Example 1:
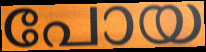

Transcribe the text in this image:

പോയ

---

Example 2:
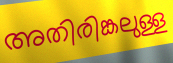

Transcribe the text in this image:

അതിരിങ്കലുള്ള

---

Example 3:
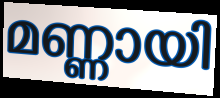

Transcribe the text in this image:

മണ്ണായി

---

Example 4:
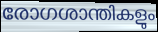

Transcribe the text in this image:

രോഗശാന്തികളും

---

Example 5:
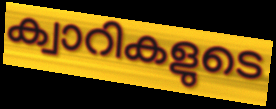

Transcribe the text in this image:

ക്വാറികളുടെ